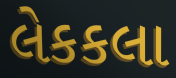
લેકકલા